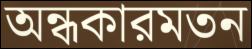
অন্ধকারমতন